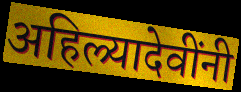
अहिल्यादेवींनी